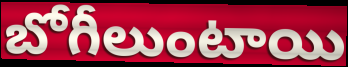
బోగీలుంటాయి